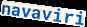
navaviri